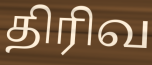
திரிவ